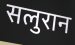
सलुरान